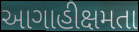
આગાહીક્ષમતા